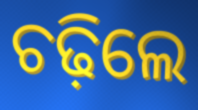
ଚଢ଼ିଲେ